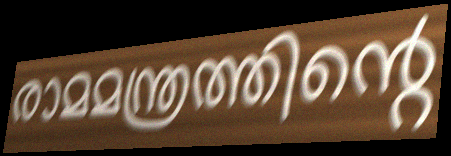
രാമമന്ത്രത്തിന്റെ